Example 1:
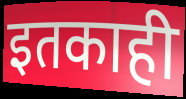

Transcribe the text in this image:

इतकाही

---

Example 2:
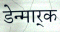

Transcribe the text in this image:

डेन्मार्क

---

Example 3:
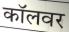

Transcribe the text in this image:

कॉलवर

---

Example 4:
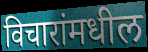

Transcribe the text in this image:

विचारांमधील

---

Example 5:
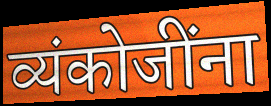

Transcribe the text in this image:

व्यंकोजींना